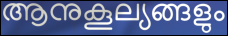
ആനുകൂല്യങ്ങളും